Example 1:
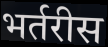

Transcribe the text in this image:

भर्तरीस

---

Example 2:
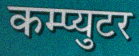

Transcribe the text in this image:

कम्प्युटर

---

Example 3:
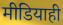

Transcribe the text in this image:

मीडियाही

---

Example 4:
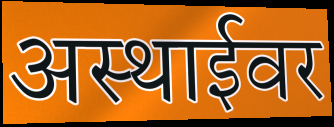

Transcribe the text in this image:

अस्थाईवर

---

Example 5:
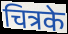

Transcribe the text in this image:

चित्रके